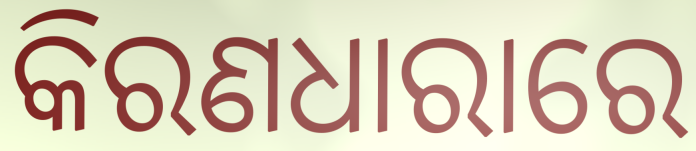
କିରଣଧାରାରେ